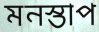
মনস্তাপ